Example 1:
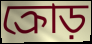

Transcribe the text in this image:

ক্রোড়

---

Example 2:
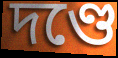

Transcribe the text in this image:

দণ্ডে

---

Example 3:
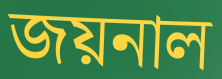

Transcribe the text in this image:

জয়নাল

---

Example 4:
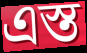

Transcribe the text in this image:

এস্ত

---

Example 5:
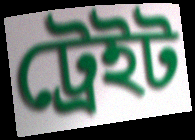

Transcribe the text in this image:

ট্রেইট